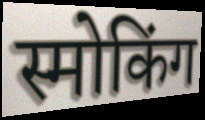
स्मोकिंग